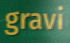
gravi